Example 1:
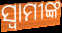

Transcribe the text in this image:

ସ୍ୱାମୀଙ୍କ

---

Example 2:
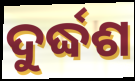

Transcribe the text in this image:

ଦୁର୍ଦ୍ଧଶ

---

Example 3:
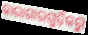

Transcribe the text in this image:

କାରାଗାରଗୁଡ଼ିକରୁ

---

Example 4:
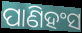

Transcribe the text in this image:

ପାଣିହଂସ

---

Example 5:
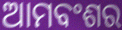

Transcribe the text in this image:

ଆମବଂଶର